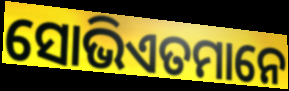
ସୋଭିଏତମାନେ